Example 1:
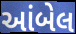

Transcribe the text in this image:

આંબેલ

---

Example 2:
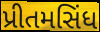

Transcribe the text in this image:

પ્રીતમસિંધ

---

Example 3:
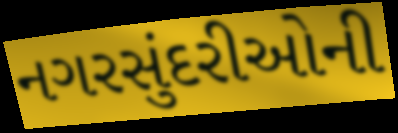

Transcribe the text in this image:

નગરસુંદરીઓની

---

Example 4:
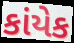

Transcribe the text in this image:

કાંયેક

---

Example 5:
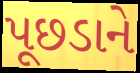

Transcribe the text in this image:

પૂછડાને